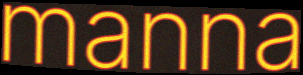
manna